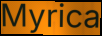
Myrica